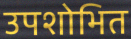
उपशोभित